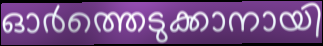
ഓർത്തെടുക്കാനായി